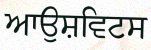
ਆਉਸ਼ਵਿਟਸ